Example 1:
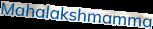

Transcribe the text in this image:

Mahalakshmamma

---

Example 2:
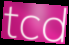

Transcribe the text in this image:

tcd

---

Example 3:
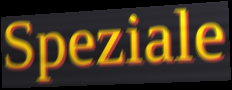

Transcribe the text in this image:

Speziale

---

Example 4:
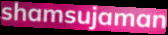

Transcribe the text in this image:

shamsujaman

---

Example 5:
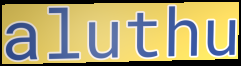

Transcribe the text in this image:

aluthu